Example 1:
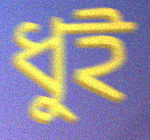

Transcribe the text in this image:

ধুই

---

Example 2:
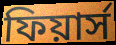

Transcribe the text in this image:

ফিয়ার্স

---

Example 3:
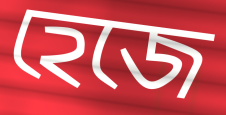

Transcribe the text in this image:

হেজে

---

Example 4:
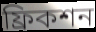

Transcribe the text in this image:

ফ্রিকশন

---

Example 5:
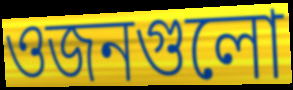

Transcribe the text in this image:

ওজনগুলো